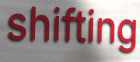
shifting